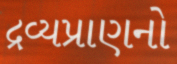
દ્રવ્યપ્રાણનો